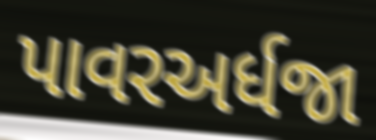
પાવરઅર્ધજા